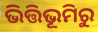
ଭିତ୍ତିଭୂମିରୁ